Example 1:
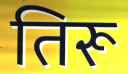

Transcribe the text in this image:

तिरू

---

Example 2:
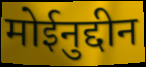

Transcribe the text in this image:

मोईनुद्दीन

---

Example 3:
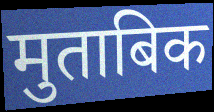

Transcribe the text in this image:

मुताबिक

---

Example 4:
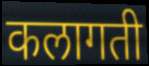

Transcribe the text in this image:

कलागती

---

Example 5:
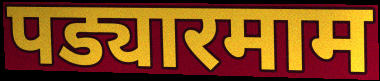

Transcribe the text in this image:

पड्यारमाम